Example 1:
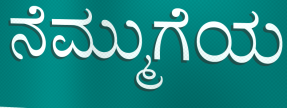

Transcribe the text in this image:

ನೆಮ್ಮುಗೆಯ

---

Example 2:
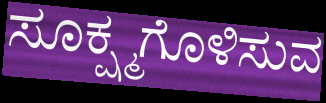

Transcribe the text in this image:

ಸೂಕ್ಷ್ಮಗೊಳಿಸುವ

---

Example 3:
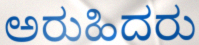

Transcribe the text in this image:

ಅರುಹಿದರು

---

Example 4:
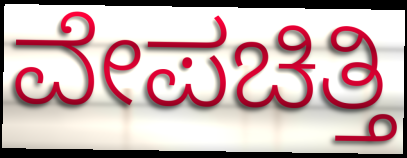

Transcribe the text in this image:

ವೇಪಚಿತ್ತಿ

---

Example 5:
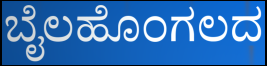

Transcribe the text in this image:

ಬೈಲಹೊಂಗಲದ